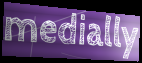
medially